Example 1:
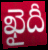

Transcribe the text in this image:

ఖైదీ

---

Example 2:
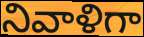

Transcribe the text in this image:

నివాళిగా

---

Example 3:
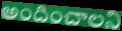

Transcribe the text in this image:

అందించాలని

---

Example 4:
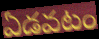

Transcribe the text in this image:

ఏడవటం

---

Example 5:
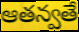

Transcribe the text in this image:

ఆతన్వతే